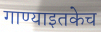
गाण्याइतकेच